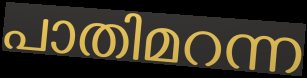
പാതിമറന്ന